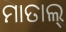
ମାତାଲ୍